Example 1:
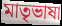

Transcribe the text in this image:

মাতৃভাষা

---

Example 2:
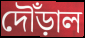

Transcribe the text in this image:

দৌঁড়াল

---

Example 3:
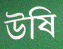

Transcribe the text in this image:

উষি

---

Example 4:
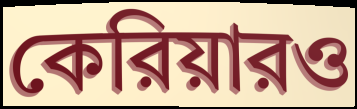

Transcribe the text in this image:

কেরিয়ারও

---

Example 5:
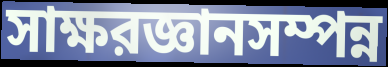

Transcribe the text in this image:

সাক্ষরজ্ঞানসম্পন্ন